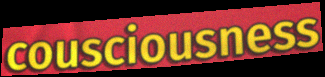
cousciousness